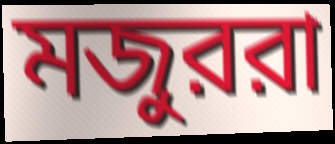
মজুররা